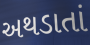
અથડાતાં